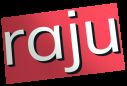
raju